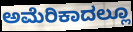
ಅಮೆರಿಕಾದಲ್ಲೂ